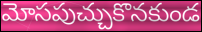
మోసపుచ్చుకొనకుండ